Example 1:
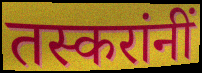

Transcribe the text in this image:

तस्करांनीं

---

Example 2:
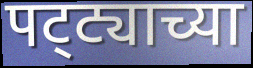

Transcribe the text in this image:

पट्ट्याच्या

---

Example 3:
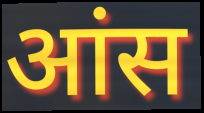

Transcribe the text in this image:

आंस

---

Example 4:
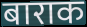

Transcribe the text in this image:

बाराक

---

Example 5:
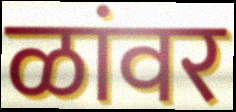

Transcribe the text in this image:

ळांवर